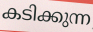
കടിക്കുന്ന